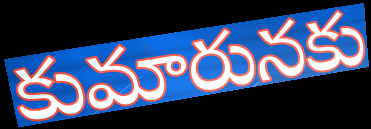
కుమారునకు